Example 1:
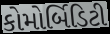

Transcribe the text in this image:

કોમોર્બિડિટી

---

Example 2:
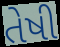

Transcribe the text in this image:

તેષી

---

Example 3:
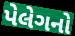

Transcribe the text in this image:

પેલેગનો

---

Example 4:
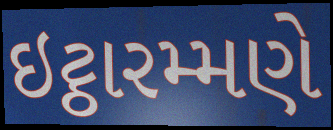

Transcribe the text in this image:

ઇટ્ઠારમ્મણે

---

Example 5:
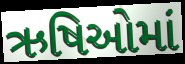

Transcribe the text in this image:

ઋષિઓમાં